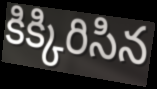
కిక్కిరిసిన